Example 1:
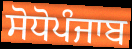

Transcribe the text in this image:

ਸੋਧੋਪੰਜਾਬ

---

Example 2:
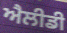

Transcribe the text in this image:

ਐਲੀਡੀ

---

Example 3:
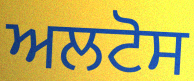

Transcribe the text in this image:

ਅਲਟੋਸ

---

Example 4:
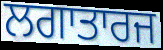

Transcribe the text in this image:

ਲਗਾਤਾਰਜ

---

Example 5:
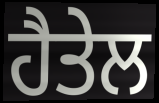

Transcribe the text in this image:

ਹੈਤੇਲ